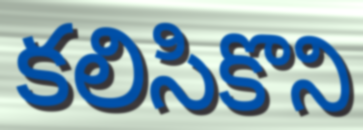
కలిసికొని